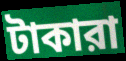
টাকারা